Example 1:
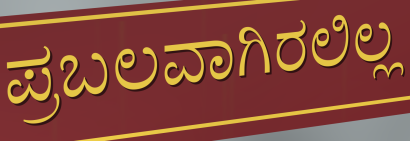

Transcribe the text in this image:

ಪ್ರಬಲವಾಗಿರಲಿಲ್ಲ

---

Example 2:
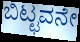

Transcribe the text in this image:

ಬಿಟ್ಟವನೇ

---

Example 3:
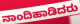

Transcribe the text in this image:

ನಾಂದಿಹಾಡಿದರು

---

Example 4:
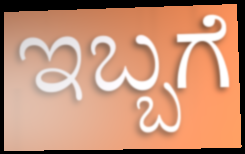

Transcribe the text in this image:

ಇಬ್ಬಗೆ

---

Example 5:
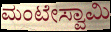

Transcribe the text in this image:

ಮಂಟೇಸ್ವಾಮಿ